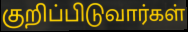
குறிப்பிடுவார்கள்